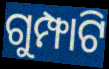
ଗୁମ୍ଫାଟି